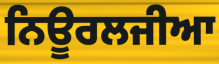
ਨਿਊਰਲਜੀਆ